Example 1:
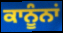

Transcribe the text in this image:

ਕਾਨੂੰਨਾਂ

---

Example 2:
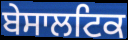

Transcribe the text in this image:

ਬੇਸਾਲਟਿਕ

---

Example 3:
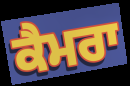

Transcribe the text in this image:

ਕੈਮਰਾ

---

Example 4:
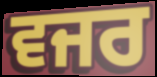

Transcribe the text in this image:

ਵਜਰ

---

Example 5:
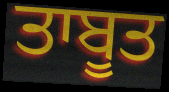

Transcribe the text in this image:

ਤਾਬੂਤ